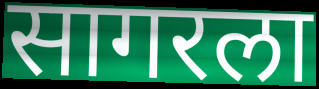
सागरला